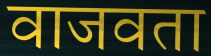
वाजवता